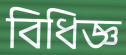
বিধিজ্ঞ